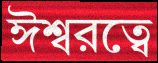
ঈশ্বরত্বে